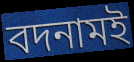
বদনামই